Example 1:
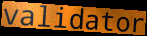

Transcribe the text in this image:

validator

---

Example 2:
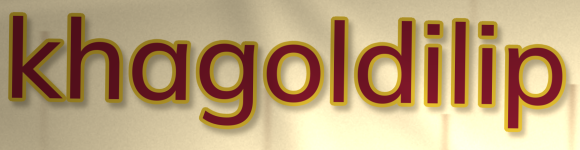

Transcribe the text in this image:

khagoldilip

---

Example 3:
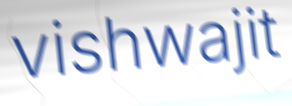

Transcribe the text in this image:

vishwajit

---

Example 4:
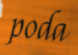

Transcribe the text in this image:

poda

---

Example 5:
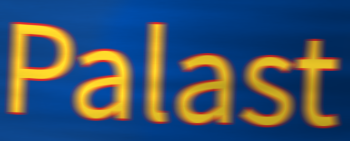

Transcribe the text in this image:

Palast